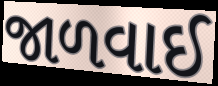
જાળવાઈ